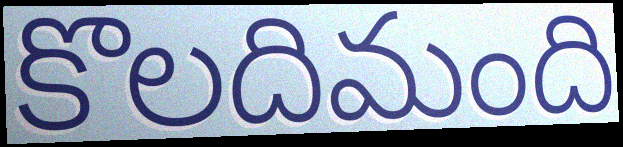
కొలదిమంది